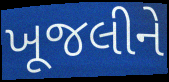
ખૂજલીને